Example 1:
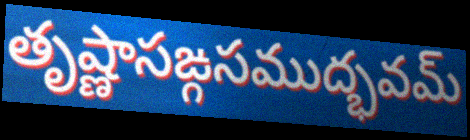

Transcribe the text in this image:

తృష్ణాసఙ్గసముద్భవమ్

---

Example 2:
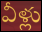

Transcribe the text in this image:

వీళ్లు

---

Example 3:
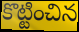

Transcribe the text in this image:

కొట్టించిన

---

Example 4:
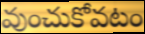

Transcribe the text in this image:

వుంచుకోవటం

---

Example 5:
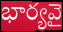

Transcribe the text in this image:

భార్యవై